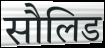
सौलिड